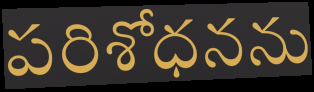
పరిశోధనను